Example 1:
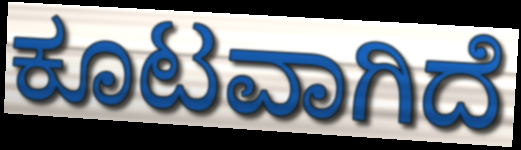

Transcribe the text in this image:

ಕೂಟವಾಗಿದೆ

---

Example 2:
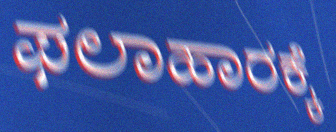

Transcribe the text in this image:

ಫಲಾಹಾರಕ್ಕೆ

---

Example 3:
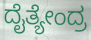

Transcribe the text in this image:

ದೈತ್ಯೇಂದ್ರ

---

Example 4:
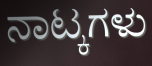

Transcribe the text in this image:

ನಾಟ್ಕಗಳು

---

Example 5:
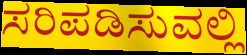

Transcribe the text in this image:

ಸರಿಪಡಿಸುವಲ್ಲಿ